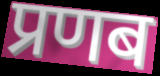
प्रणब